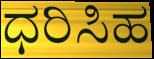
ಧರಿಸಿಹ